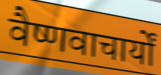
वैष्णवाचार्यों